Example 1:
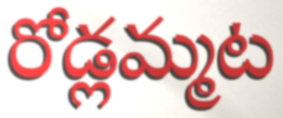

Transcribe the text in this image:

రోడ్లమ్మట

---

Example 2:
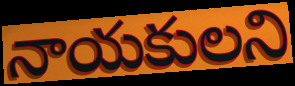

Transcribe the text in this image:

నాయకులని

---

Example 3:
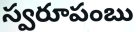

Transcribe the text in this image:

స్వరూపంబు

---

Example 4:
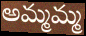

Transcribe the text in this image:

అమ్మమ్మ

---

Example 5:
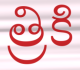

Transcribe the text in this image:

త్రికి